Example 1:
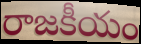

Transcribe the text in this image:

రాజకీయం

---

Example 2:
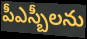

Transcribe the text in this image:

పీఎస్బీలను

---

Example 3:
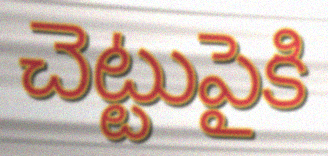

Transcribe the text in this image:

చెట్టుపైకి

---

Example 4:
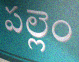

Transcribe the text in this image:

పల్లెం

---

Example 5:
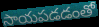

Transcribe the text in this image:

సాయపడడంతో